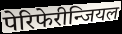
पेरिफेरीन्जियल